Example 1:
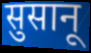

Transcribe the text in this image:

सुसानू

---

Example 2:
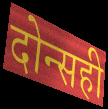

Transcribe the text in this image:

दोन्सही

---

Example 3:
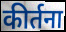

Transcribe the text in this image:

कीर्तना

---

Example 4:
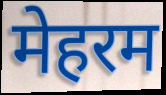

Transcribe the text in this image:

मेहरम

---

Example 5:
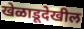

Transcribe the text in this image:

खेळाडूदेखील